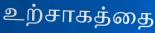
உற்சாகத்தை